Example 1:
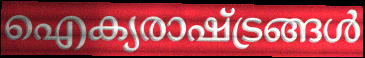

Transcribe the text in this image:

ഐക്യരാഷ്ട്രങ്ങൾ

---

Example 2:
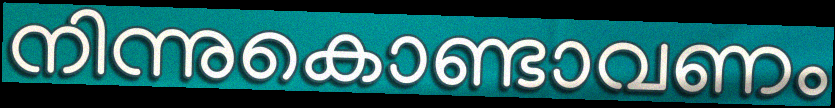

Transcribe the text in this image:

നിന്നുകൊണ്ടാവണം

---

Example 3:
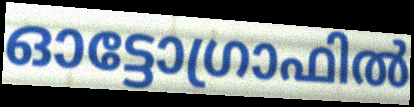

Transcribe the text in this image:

ഓട്ടോഗ്രാഫിൽ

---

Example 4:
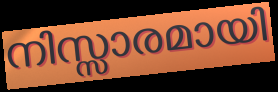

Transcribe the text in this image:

നിസ്സാരമായി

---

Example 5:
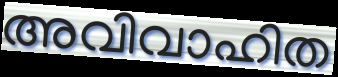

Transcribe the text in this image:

അവിവാഹിത